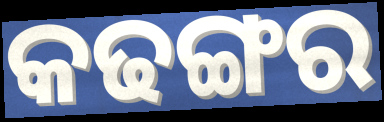
କଢଙ୍ଗର